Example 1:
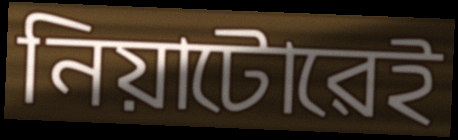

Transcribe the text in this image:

নিয়াটোৱেই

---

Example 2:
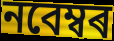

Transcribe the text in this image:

নবেম্বৰ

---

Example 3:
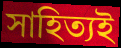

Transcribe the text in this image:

সাহিত্য়ই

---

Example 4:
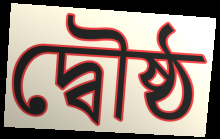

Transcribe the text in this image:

দ্বৌষ্ঠ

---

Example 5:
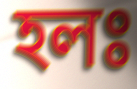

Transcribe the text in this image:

হলঃ